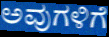
ಅವುಗಳಿಗೆ